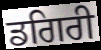
ਡਗਿਰੀ